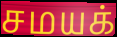
சமயக்